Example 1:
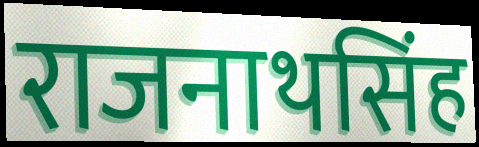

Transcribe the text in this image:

राजनाथसिंह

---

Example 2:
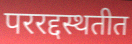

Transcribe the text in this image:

पररद्दस्थतीत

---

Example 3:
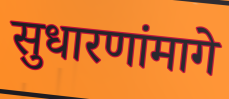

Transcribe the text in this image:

सुधारणांमागे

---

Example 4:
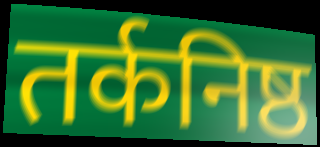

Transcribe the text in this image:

तर्कनिष्ठ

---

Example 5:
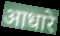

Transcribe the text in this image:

आधारे